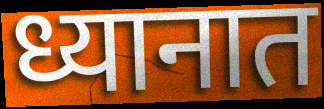
ध्यानात